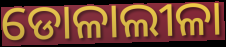
ଡୋଳାଲୀଳା